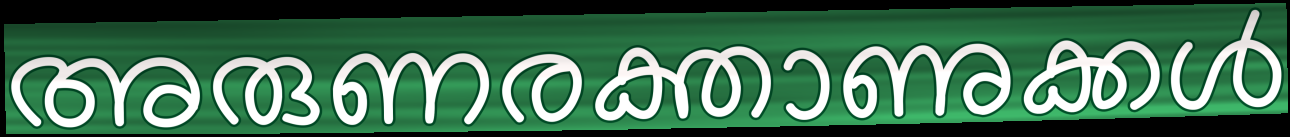
അരുണരക്താണുക്കൾ